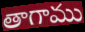
తాగాము